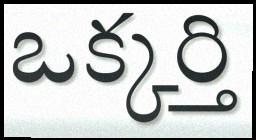
ఒక్కర్తి